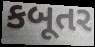
કબૂતર